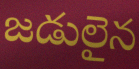
జడులైన